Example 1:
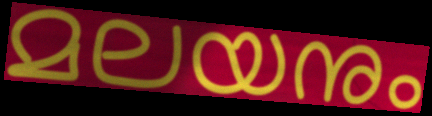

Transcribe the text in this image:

മലയനും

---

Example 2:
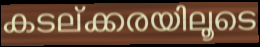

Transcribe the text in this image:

കടല്ക്കരയിലൂടെ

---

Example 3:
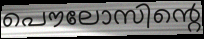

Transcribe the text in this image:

പൌലോസിന്റെ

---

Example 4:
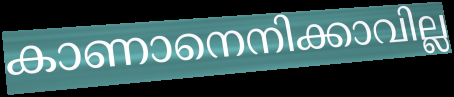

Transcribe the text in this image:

കാണാനെനിക്കാവില്ല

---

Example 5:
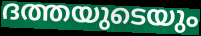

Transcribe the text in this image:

ദത്തയുടെയും